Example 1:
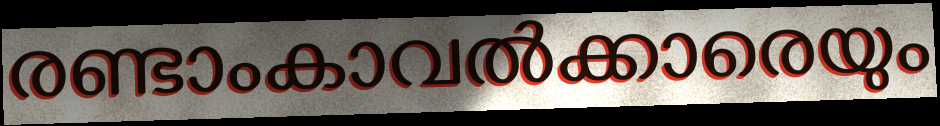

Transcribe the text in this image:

രണ്ടാംകാവൽക്കാരെയും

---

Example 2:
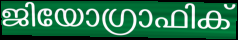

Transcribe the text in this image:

ജിയോഗ്രാഫിക്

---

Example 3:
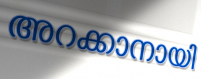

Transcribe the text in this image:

അറക്കാനായി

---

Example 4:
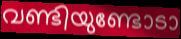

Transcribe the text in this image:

വണ്ടിയുണ്ടോടാ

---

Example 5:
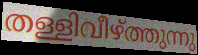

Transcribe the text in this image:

തള്ളിവീഴ്ത്തുന്നു